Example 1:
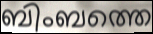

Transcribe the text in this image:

ബിംബത്തെ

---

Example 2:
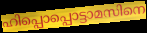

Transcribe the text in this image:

ഹിപ്പൊപ്പൊട്ടാമസിനെ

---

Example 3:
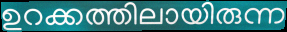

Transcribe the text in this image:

ഉറക്കത്തിലായിരുന്ന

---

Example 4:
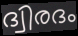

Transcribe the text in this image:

ദ്വിരദം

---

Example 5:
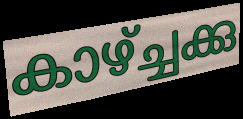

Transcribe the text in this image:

കാഴ്ച്ചക്കു